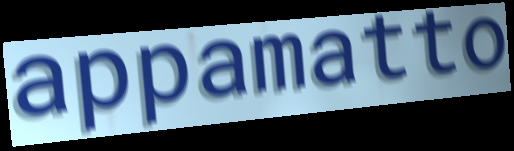
appamatto